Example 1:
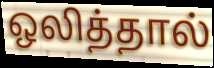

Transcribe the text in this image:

ஒலித்தால்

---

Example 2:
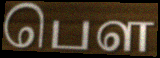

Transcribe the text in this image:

பெள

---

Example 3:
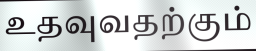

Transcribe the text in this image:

உதவுவதற்கும்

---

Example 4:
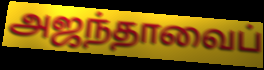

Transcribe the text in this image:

அஜந்தாவைப்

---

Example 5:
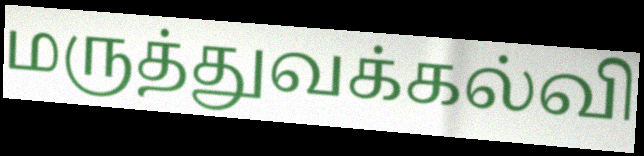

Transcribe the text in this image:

மருத்துவக்கல்வி